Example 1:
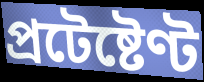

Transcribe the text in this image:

প্ৰটেষ্টেণ্ট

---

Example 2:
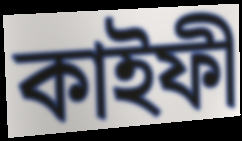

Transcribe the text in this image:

কাইফী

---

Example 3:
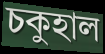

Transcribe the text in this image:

চকুহাল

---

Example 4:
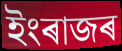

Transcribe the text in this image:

ইংৰাজৰ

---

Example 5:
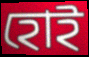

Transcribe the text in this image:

হোই